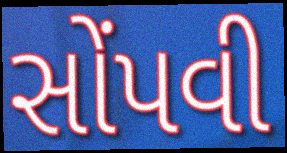
સોંપવી